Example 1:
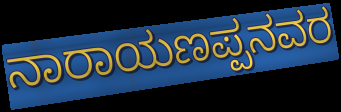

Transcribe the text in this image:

ನಾರಾಯಣಪ್ಪನವರ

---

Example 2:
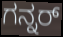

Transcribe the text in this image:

ಗನ್ನರ್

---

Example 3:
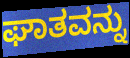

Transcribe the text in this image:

ಘಾತವನ್ನು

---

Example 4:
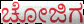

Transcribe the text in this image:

ಚೋಜಿಗ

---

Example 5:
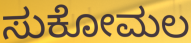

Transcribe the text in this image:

ಸುಕೋಮಲ